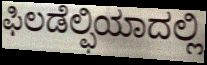
ಫಿಲಡೆಲ್ಫಿಯಾದಲ್ಲಿ